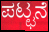
ಪಟ್ಟನೆ